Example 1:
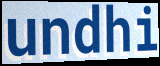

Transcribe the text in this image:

undhi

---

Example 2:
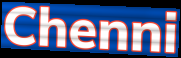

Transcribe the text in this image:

Chenni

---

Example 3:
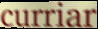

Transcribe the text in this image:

curriar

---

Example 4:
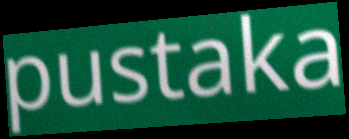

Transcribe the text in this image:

pustaka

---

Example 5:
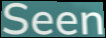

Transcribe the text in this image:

Seen